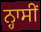
ਨ੍ਹਾਸੀਂ